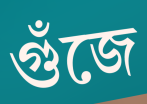
গুঁজে